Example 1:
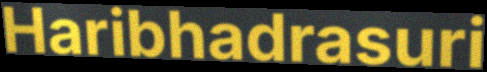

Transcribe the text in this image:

Haribhadrasuri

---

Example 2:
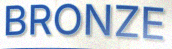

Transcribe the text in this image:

BRONZE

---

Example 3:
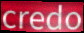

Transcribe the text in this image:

credo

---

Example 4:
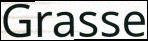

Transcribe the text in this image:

Grasse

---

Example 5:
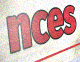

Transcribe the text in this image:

nces